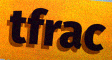
tfrac